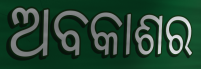
ଅବକାଶର